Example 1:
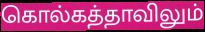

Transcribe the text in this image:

கொல்கத்தாவிலும்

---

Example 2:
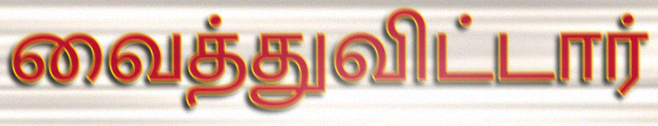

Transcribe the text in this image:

வைத்துவிட்டார்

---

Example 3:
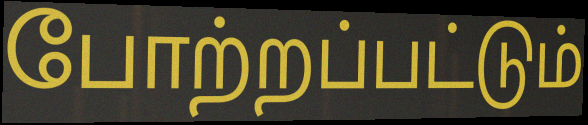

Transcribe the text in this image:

போற்றப்பட்டும்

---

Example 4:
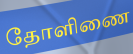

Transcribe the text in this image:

தோளிணை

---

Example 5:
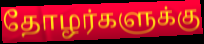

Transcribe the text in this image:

தோழர்களுக்கு